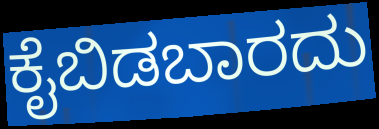
ಕೈಬಿಡಬಾರದು